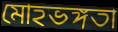
মোহভঙ্গতা